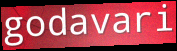
godavari